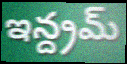
ఇన్ద్రమ్